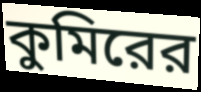
কুমিরের